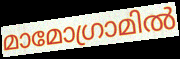
മാമോഗ്രാമിൽ